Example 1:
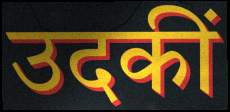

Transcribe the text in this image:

उदकीं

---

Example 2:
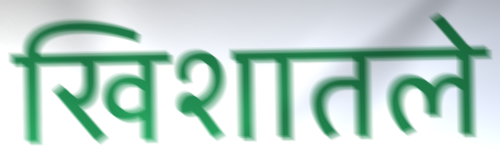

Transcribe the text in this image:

खिशातले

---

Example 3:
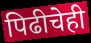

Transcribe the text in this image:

पिढीचेही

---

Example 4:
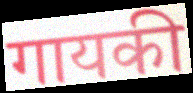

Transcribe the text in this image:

गायकी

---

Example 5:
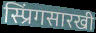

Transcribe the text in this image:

स्प्रिंगसारखी